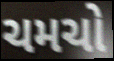
ચમચો